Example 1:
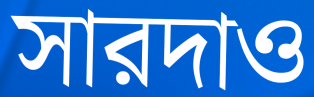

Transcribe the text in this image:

সারদাও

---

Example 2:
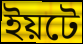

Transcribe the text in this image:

ইয়টে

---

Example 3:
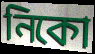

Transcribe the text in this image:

নিকো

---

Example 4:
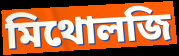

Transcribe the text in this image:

মিথোলজি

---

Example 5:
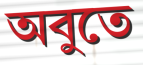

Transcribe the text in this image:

অবুতে